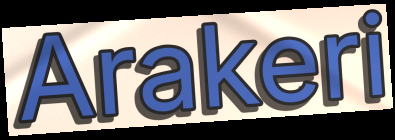
Arakeri